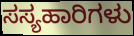
ಸಸ್ಯಹಾರಿಗಳು